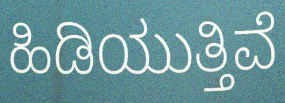
ಹಿಡಿಯುತ್ತಿವೆ